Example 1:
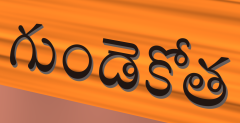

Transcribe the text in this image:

గుండెకోత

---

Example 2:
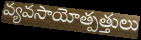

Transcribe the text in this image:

వ్యవసాయోత్పత్తులు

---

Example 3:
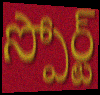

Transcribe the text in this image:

స్పోర్ట్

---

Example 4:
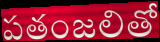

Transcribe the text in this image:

పతంజలితో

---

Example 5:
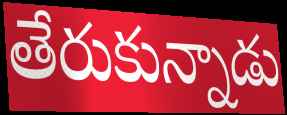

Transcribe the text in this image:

తేరుకున్నాడు